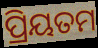
ପ୍ରିୟତମ